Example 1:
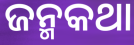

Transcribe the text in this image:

ଜନ୍ମକଥା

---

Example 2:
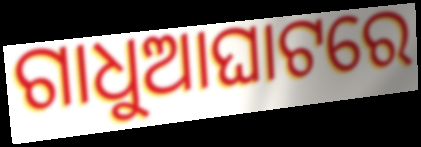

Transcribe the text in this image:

ଗାଧୁଆଘାଟରେ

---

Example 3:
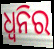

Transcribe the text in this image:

ଧ୍ୱନିର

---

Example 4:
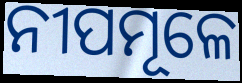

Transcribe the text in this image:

ନୀପମୂଳେ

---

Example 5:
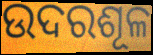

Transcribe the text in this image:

ଉଦରଶୂଳ